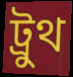
ট্রুথ